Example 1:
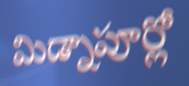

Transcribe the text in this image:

మిడ్నాపూర్లో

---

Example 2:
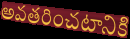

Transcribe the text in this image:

అవతరించటానికి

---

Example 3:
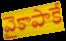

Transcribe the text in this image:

వైకాపాకే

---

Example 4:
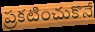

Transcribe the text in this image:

ప్రకటించుకొనే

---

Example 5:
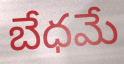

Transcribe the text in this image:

బేధమే